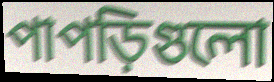
পাপড়িগুলো